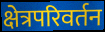
क्षेत्रपरिवर्तन